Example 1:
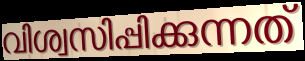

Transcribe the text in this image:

വിശ്വസിപ്പിക്കുന്നത്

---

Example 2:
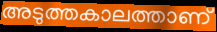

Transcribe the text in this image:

അടുത്തകാലത്താണ്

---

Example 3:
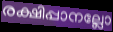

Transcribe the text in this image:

രക്ഷിപ്പാനല്ലോ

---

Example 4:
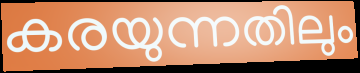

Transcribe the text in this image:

കരയുന്നതിലും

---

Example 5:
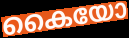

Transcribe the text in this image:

കൈയോ